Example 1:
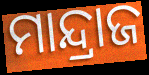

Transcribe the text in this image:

ମାନ୍ଦ୍ରାଜ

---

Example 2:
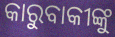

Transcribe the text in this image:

କାରୁବାକୀଙ୍କୁ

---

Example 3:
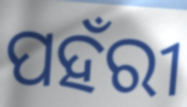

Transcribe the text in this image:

ପହଁରୀ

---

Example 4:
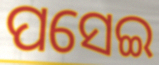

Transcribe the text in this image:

ପସେଇ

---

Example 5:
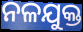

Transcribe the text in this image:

ନଳଯୁକ୍ତ